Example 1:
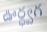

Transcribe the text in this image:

ఊర్ధ్వగ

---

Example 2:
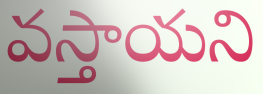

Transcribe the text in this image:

వస్తాయని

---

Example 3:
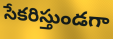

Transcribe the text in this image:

సేకరిస్తుండగా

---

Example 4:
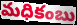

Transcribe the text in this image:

మధికంబు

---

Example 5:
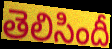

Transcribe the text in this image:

తెలిసిందీ